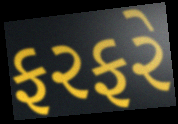
ફરફરે